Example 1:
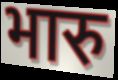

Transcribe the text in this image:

भारु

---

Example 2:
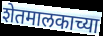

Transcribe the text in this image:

शेतमालकाच्या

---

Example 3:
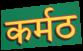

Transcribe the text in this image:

कर्मठ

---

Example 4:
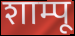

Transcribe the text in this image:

शाम्पू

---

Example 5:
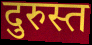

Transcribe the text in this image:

दुरुस्त